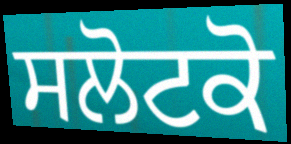
ਸਲੋਟਕੋ